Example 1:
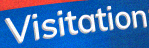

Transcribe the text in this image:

Visitation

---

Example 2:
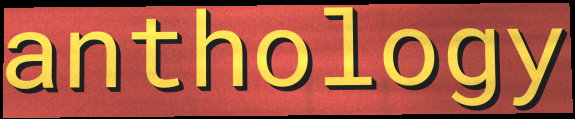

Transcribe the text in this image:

anthology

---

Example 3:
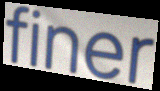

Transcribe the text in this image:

finer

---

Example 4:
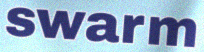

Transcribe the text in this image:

swarm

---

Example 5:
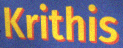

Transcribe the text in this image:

Krithis